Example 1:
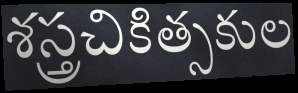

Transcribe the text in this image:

శస్త్రచికిత్సకుల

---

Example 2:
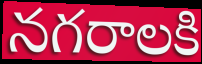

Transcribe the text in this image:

నగరాలకి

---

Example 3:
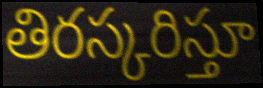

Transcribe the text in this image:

తిరస్కరిస్తూ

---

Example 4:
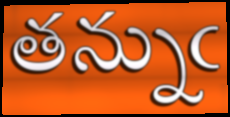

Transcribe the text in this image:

తన్నుఁ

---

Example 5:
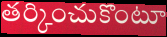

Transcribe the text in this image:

తర్కించుకొంటూ